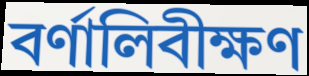
বর্ণালিবীক্ষণ